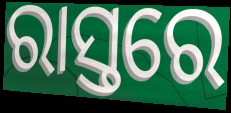
ରାସ୍ତରେ